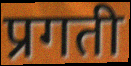
प्रगती